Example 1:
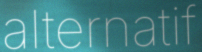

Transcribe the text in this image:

alternatif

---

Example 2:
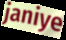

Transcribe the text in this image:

janiye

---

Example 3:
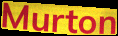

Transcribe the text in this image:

Murton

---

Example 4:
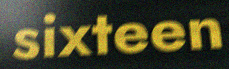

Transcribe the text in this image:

sixteen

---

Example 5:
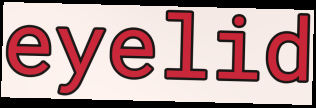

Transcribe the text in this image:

eyelid